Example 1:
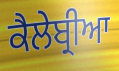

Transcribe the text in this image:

ਕੈਲੇਬ੍ਰੀਆ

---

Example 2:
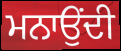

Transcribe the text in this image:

ਮਨਾਉਂਦੀ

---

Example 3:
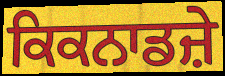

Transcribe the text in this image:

ਕਿਕਨਾਡਜ਼ੇ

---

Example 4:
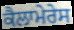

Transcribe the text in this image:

ਕੈਲਾਮੇਰੇਸ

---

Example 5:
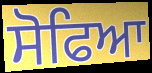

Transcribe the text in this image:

ਸੋਫਿਆ